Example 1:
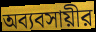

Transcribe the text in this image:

অব্যবসায়ীর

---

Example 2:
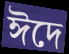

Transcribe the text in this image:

ঈদে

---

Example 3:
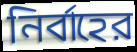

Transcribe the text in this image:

নির্বাহের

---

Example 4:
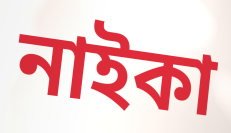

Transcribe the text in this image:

নাইকা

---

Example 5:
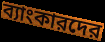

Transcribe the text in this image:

ব্যাংকারদের